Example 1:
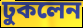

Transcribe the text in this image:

ঢুকলেন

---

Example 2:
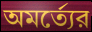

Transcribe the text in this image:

অমর্ত্যের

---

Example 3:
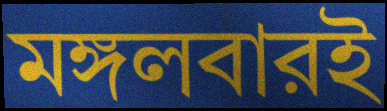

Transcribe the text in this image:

মঙ্গলবারই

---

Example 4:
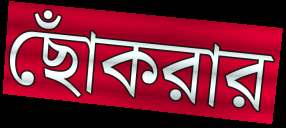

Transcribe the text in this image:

ছোঁকরার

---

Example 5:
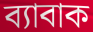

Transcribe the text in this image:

ব্যাবাক